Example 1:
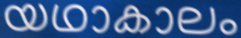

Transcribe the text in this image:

യഥാകാലം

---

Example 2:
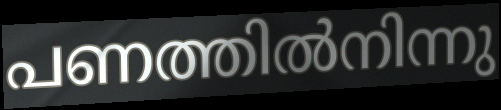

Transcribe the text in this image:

പണത്തിൽനിന്നു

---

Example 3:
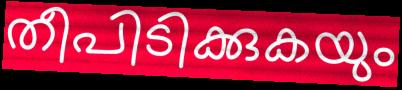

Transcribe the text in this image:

തീപിടിക്കുകയും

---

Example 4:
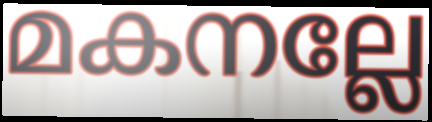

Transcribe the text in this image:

മകനല്ലേ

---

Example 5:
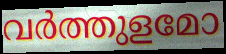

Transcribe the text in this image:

വർത്തുളമോ